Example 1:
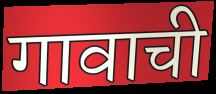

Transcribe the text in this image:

गावाची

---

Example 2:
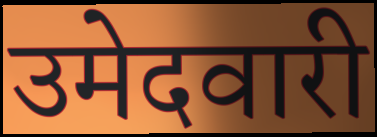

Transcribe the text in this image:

उमेदवारी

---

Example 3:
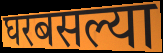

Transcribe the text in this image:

घरबसल्या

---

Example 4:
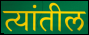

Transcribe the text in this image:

त्यांतील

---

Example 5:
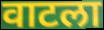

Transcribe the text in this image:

वाटला